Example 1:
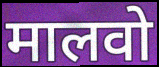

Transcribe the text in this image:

मालवो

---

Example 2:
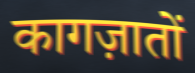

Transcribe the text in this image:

कागज़ातों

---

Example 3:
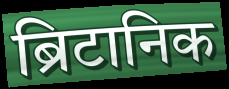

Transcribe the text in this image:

ब्रिटानिक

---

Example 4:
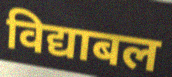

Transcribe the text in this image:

विद्याबल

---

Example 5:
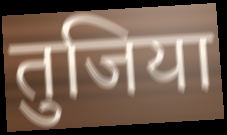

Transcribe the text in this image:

तुजिया